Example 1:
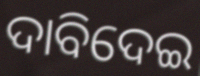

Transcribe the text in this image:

ଦାବିଦେଇ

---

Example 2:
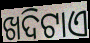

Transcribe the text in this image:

ଖଦିଟାଏ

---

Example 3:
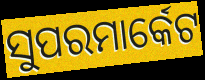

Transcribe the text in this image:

ସୁପରମାର୍କେଟ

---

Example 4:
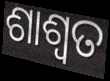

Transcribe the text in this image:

ଶାଶ୍ଵତ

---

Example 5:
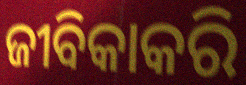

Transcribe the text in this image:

ଜୀବିକାକରି